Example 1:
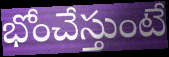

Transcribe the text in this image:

భోంచేస్తుంటే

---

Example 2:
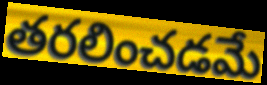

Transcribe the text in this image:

తరలించడమే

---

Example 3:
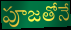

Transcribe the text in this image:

పూజతోనే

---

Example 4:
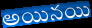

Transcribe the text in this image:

అయినయి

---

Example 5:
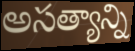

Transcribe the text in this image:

అసత్యాన్ని